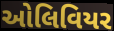
ઓલિવિયર